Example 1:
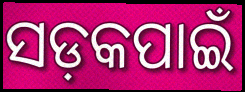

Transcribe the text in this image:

ସଡ଼କପାଇଁ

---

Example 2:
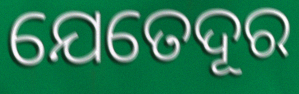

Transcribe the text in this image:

ଯେତେଦୂର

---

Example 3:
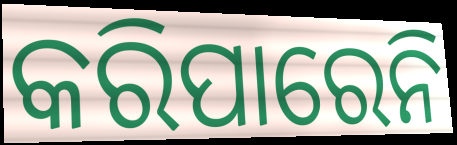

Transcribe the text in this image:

କରିପାରେନି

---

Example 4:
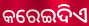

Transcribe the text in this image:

କରେଇଦିଏ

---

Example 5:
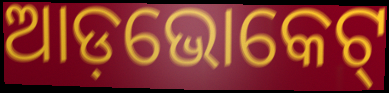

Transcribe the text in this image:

ଆଡ଼ଭୋକେଟ୍